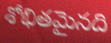
శోభితమైనది